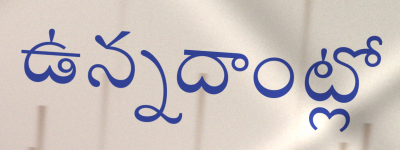
ఉన్నదాంట్లో